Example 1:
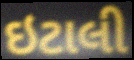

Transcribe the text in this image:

ઇટાલી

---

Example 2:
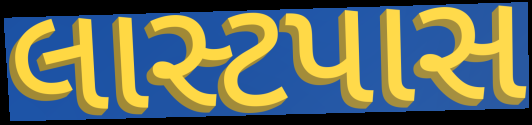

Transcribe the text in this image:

લાસ્ટપાસ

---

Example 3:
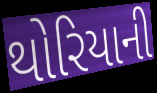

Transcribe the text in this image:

થોરિયાની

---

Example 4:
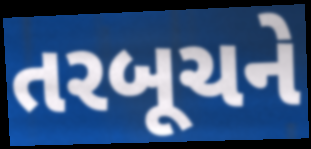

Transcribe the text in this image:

તરબૂચને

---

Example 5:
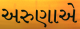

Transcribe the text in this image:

અરુણાએ